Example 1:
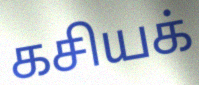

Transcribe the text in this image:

கசியக்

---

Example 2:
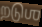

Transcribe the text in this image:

றடுஶ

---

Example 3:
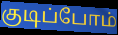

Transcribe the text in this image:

குடிப்போம்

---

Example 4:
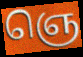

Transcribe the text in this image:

ஞெ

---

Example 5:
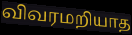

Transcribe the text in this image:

விவரமறியாத